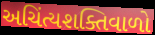
અચિંત્યશક્તિવાળો